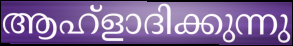
ആഹ്ളാദിക്കുന്നു